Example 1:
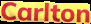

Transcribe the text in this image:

Carlton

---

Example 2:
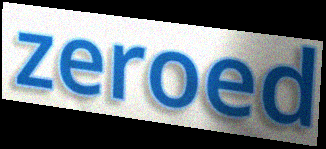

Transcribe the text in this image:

zeroed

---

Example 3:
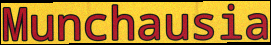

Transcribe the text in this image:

Munchausia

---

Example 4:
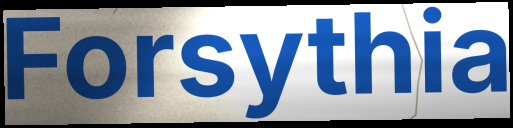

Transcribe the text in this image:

Forsythia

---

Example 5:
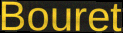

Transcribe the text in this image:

Bouret